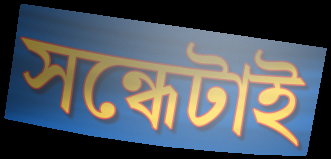
সন্ধেটাই